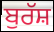
ਬੁਰੱਸ਼